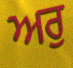
ਅਰੁ